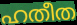
ഹതീത